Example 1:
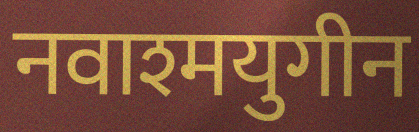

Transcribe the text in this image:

नवाश्मयुगीन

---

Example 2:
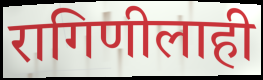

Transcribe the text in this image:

रागिणीलाही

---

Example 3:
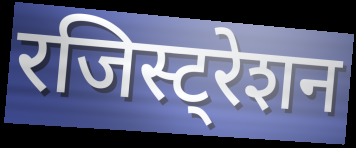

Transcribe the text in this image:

रजिस्ट्रेशन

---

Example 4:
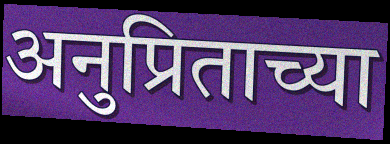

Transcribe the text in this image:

अनुप्रिताच्या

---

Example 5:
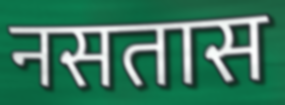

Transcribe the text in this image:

नसतास